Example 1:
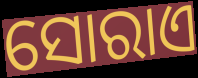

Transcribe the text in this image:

ସୋରାଏ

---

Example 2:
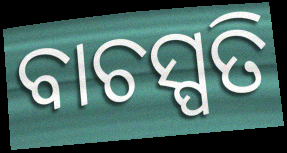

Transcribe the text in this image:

ବାଚସ୍ପତି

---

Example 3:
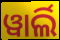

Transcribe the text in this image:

ୱାର୍ଲି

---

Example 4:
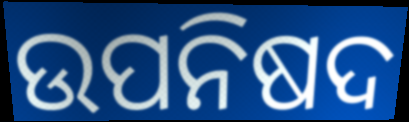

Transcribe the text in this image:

ଉପନିଷଦ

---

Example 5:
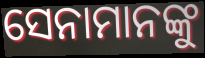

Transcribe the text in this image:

ସେନାମାନଙ୍କୁ